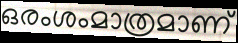
ഒരംശംമാത്രമാണ്